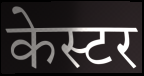
केस्टर